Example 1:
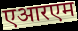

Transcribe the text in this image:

एआरएम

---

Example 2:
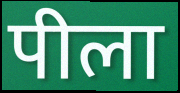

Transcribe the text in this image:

पीला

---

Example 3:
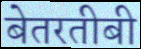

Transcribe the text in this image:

बेतरतीबी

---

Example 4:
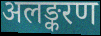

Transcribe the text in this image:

अलङ्करण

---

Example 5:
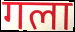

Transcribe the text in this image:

गला